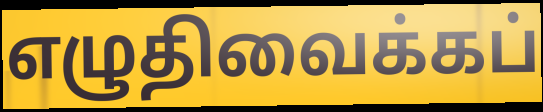
எழுதிவைக்கப்